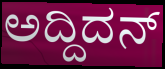
ಅದ್ದಿದನ್